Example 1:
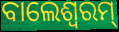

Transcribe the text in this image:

ବାଲେଶ୍ବରମ୍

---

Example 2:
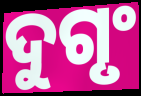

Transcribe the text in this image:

ଦୁଗୃଂ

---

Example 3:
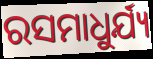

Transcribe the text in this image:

ରସମାଧୁର୍ଯ୍ୟ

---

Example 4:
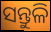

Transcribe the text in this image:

ସନ୍ତୁଳି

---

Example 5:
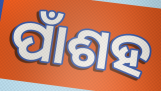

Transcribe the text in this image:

ପାଁଶହ